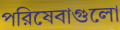
পরিষেবাগুলো